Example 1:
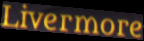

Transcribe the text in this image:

Livermore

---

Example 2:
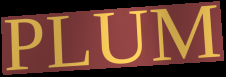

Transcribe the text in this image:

PLUM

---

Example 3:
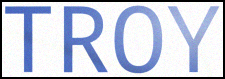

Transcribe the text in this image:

TROY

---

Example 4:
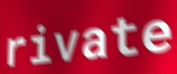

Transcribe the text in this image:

rivate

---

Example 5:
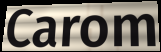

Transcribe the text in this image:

Carom